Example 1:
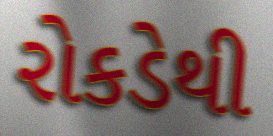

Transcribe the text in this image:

રોકડેથી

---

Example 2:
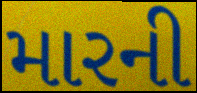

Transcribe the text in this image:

મારની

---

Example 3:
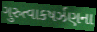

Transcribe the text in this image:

ગુરુત્વાકષર્ઝણના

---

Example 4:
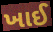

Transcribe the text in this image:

ખાઈ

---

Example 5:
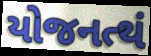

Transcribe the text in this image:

યોજનત્થં